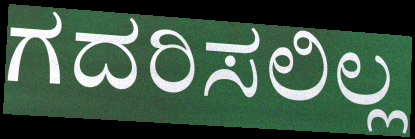
ಗದರಿಸಲಿಲ್ಲ